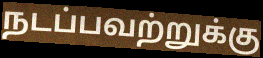
நடப்பவற்றுக்கு